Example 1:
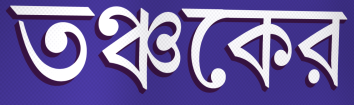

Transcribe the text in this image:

তঞ্চকের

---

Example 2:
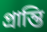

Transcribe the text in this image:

প্রান্তি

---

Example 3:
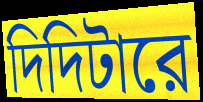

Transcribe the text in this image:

দিদিটারে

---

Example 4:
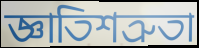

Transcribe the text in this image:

জ্ঞাতিশত্রুতা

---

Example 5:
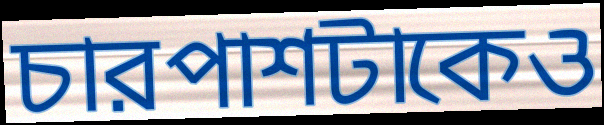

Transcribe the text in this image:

চারপাশটাকেও